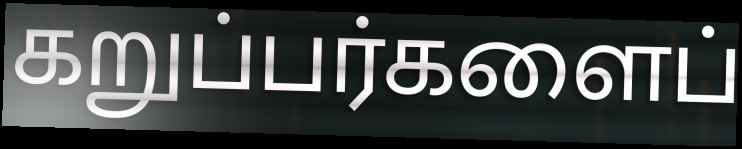
கறுப்பர்களைப்